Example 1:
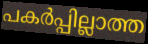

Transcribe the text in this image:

പകർപ്പില്ലാത്ത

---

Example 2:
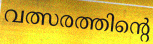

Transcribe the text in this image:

വത്സരത്തിന്റെ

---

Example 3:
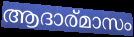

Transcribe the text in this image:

ആദാര്മാസം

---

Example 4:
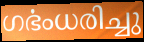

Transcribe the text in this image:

ഗൎഭംധരിച്ചു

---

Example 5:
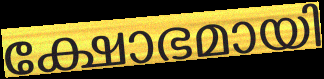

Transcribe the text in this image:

ക്ഷോഭമായി